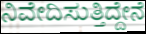
ನಿವೇದಿಸುತ್ತಿದ್ದೇನೆ